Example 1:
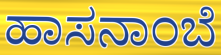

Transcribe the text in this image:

ಹಾಸನಾಂಬೆ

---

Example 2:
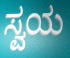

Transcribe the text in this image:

ಸ್ವಯ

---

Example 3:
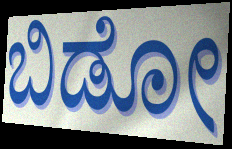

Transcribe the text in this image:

ಬಿಡೋ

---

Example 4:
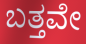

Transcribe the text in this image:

ಬತ್ತವೇ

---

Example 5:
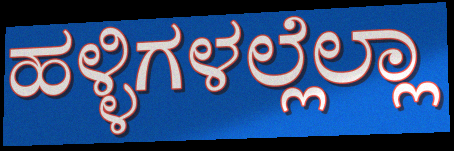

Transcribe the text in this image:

ಹಳ್ಳಿಗಳಲ್ಲೆಲ್ಲಾ